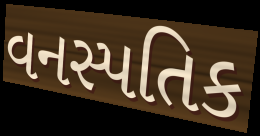
વનસ્પતિક